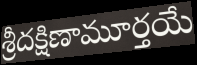
శ్రీదక్షిణామూర్తయే